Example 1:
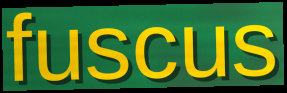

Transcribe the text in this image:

fuscus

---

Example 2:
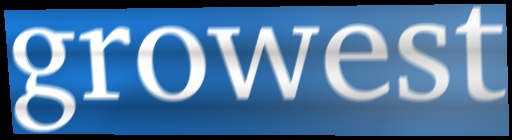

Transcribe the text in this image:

growest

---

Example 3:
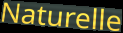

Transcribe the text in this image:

Naturelle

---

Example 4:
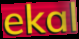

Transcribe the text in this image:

ekal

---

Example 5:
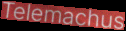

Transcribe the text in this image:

Telemachus